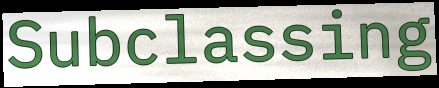
Subclassing